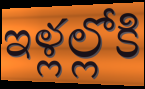
ఇళ్లల్లోకి